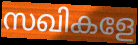
സഖികളേ